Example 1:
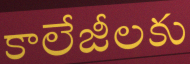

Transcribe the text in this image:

కాలేజీలకు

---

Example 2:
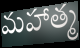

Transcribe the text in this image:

మహాత్మ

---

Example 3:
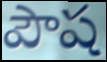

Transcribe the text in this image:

పౌష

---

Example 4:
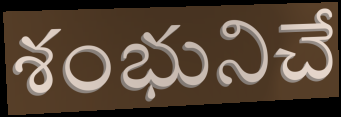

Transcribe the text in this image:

శంభునిచే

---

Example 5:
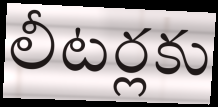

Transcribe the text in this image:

లీటర్లకు